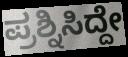
ಪ್ರಶ್ನಿಸಿದ್ದೇ